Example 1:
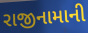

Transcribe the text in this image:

રાજીનામાની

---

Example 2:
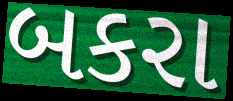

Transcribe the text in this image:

બકરા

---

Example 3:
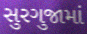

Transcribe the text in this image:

સુરગુજામાં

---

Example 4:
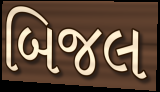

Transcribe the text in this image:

બિજલ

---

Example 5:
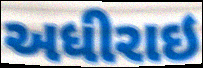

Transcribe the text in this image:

અધીરાઇ